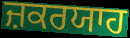
ਜ਼ਕਰਯਾਹ